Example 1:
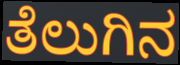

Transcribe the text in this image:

ತೆಲುಗಿನ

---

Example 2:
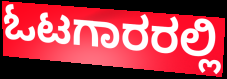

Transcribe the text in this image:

ಓಟಗಾರರಲ್ಲಿ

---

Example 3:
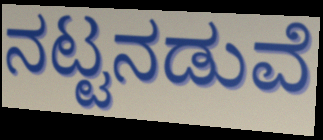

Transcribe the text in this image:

ನಟ್ಟನಡುವೆ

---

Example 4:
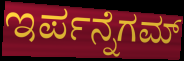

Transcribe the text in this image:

ಇರ್ಪನ್ನೆಗಮ್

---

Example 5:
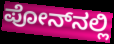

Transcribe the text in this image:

ಪೋನ್‍ನಲ್ಲಿ